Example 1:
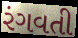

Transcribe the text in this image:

રંગવતી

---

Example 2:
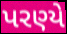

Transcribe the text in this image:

પરણ્યે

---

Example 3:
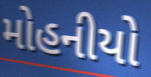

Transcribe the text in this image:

મોહનીયો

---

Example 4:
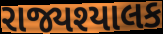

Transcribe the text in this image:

રાજ્યશ્યાલક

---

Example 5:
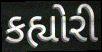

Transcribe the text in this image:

કહ્યોરી